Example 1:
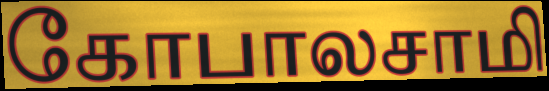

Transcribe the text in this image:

கோபாலசாமி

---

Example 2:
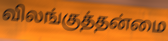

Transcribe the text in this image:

விலங்குத்தன்மை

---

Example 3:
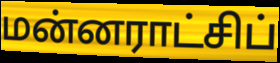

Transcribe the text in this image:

மன்னராட்சிப்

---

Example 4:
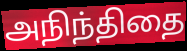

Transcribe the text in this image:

அநிந்திதை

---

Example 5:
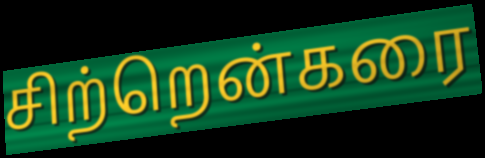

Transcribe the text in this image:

சிற்றென்கரை